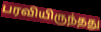
பரவியிருந்தது